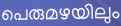
പെരുമഴയിലും